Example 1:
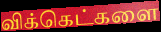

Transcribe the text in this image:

விக்கெட்களை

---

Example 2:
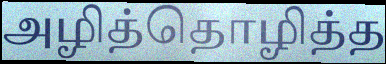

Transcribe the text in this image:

அழித்தொழித்த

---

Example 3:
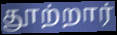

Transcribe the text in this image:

தூற்றார்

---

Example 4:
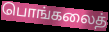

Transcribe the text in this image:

பொங்கலைத்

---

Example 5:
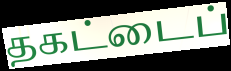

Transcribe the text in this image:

தகட்டைப்